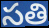
సతి